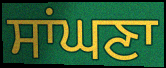
ਸਾਂਘਣਾ